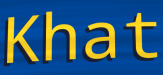
Khat